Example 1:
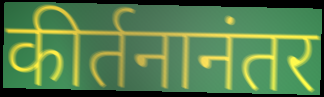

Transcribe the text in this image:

कीर्तनानंतर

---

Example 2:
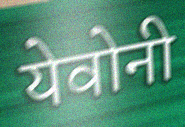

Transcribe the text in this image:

येवोनी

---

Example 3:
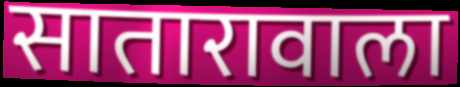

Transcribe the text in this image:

सातारावाला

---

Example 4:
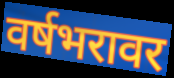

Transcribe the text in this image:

वर्षभरावर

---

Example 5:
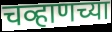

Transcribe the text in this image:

चव्हाणच्या